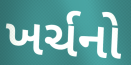
ખર્ચનો